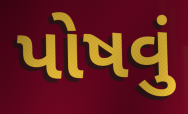
પોષવું